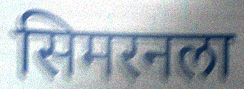
सिमरनला